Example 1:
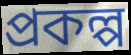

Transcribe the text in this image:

প্রকল্প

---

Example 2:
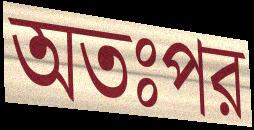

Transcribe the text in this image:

অতঃপর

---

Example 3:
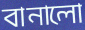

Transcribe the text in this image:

বানালো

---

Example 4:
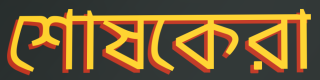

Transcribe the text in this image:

শোষকেরা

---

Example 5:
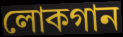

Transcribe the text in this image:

লোকগান